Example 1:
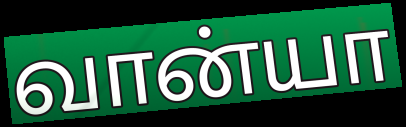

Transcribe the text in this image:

வான்யா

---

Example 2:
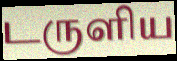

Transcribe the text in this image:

டருளிய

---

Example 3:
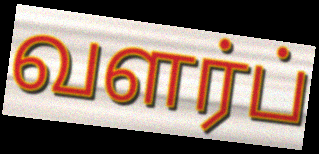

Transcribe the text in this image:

வளர்ப்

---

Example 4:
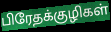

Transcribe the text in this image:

பிரேதக்குழிகள்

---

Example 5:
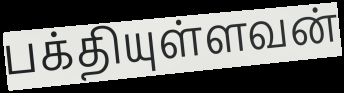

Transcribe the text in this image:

பக்தியுள்ளவன்